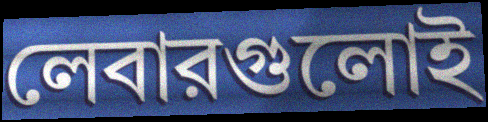
লেবারগুলোই